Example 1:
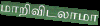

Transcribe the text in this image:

மாறிவிடலாமா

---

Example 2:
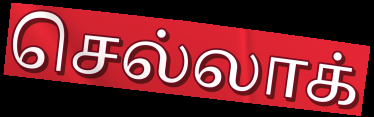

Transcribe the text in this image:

செல்லாக்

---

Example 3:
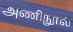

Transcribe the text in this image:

அணிநூல்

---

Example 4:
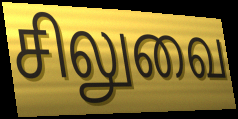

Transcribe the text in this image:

சிலுவை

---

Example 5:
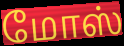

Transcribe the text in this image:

மோஸ்